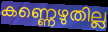
കണ്ണെഴുതില്ല